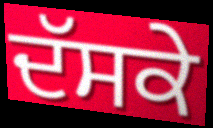
ਦੱਸਕੇ